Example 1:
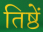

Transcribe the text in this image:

तिष्ठें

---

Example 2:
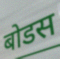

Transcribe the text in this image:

बोडस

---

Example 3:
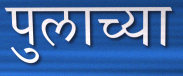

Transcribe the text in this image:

पुलाच्या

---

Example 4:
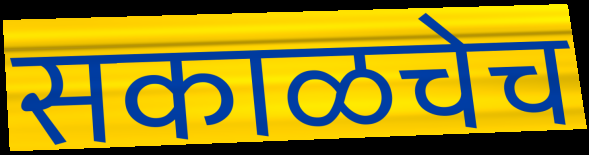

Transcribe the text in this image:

सकाळचेच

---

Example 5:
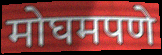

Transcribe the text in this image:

मोघमपणे